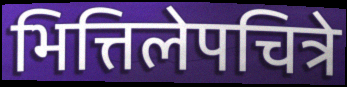
भित्तिलेपचित्रे